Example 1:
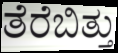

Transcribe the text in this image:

ತೆರೆಬಿತ್ತು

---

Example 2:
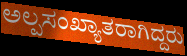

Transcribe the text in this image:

ಅಲ್ಪಸಂಖ್ಯಾತರಾಗಿದ್ದರು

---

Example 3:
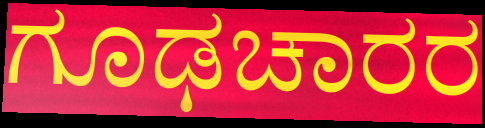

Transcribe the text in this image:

ಗೂಢಚಾರರ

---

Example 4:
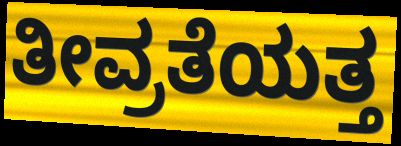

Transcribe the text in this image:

ತೀವ್ರತೆಯತ್ತ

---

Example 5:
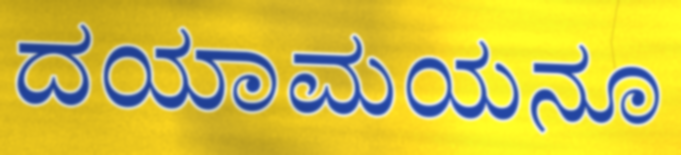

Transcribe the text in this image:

ದಯಾಮಯನೂ